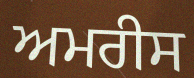
ਅਮਰੀਸ